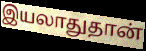
இயலாதுதான்